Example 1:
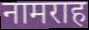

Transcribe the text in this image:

नामराह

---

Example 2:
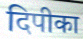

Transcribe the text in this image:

दिपीका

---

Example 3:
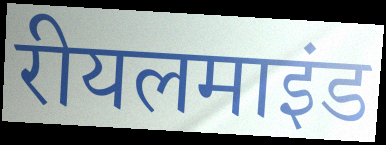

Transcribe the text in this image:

रीयलमाइंड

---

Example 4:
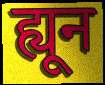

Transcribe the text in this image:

ह्यून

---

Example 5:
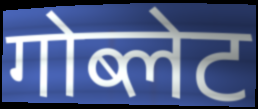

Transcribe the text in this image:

गोब्लेट